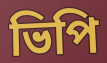
ভিপি